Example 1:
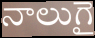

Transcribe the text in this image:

నాలుగై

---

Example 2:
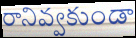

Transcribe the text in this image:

రానివ్వకుండా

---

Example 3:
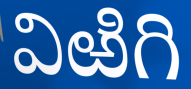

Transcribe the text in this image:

విఱిగి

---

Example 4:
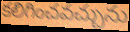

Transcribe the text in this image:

కలిగించవచ్చును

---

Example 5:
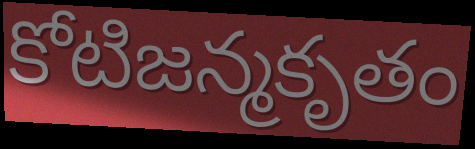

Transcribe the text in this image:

కోటిజన్మకృతం